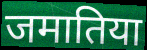
जमातिया